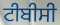
ਟੀਬੀਸੀ